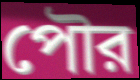
পৌর